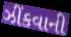
ઝીંકવાની